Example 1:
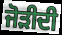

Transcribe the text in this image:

ਜੋੜੀਦੀ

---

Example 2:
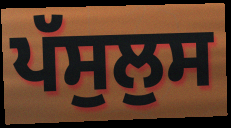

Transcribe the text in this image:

ਪੱਸੁਲੁਸ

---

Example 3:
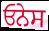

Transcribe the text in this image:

ਓਨੇਸ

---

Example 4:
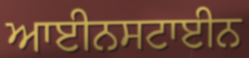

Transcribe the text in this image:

ਆਈਨਸਟਾਈਨ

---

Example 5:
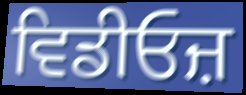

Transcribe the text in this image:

ਵਿਡੀਓਜ਼